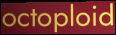
octoploid